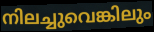
നിലച്ചുവെങ്കിലും